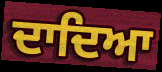
ਦਾਦਿਆ